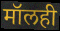
मॉलही